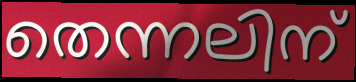
തെന്നലിന്